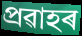
প্ৰৱাহৰ